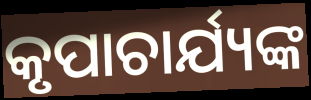
କୃପାଚାର୍ଯ୍ୟଙ୍କ